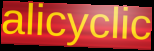
alicyclic